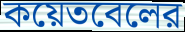
কয়েতবেলের